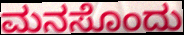
ಮನಸೊಂದು